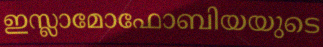
ഇസ്ലാമോഫോബിയയുടെ